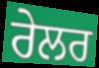
ਰੇਲਰ